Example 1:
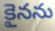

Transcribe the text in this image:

కైనను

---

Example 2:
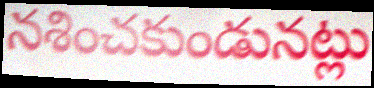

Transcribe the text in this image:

నశించకుండునట్లు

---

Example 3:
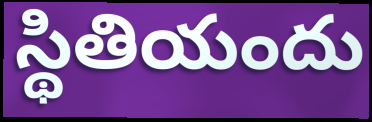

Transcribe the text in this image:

స్థితియందు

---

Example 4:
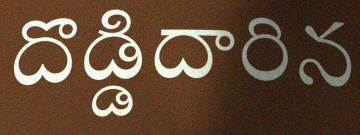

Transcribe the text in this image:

దొడ్డిదారిన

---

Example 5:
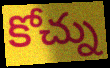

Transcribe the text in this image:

కోచ్ను